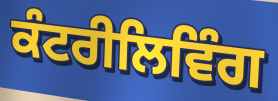
ਕੰਟਰੀਲਿਵਿੰਗ